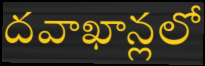
దవాఖాన్లలో